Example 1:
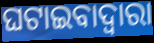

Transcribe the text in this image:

ଘଟାଇବାଦ୍ୱାରା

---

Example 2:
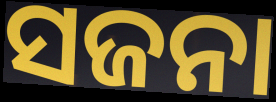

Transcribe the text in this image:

ସଜନା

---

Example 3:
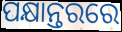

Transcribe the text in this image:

ପକ୍ଷାନ୍ତରରେ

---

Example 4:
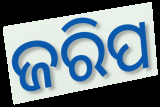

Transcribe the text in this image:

ଜରିପ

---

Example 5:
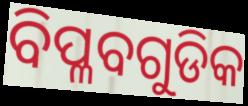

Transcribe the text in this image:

ବିପ୍ଳବଗୁଡିକ